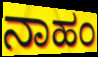
ನಾಹಂ